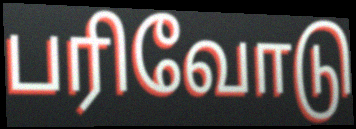
பரிவோடு